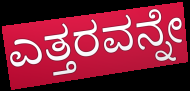
ಎತ್ತರವನ್ನೇ